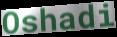
Oshadi